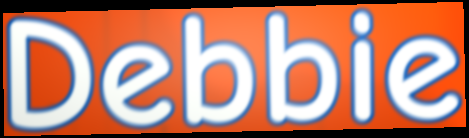
Debbie